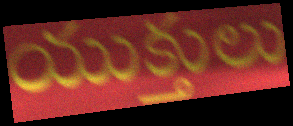
యుక్తులు